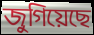
জুগিয়েছে